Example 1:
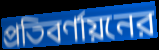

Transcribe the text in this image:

প্রতিবর্ণায়নের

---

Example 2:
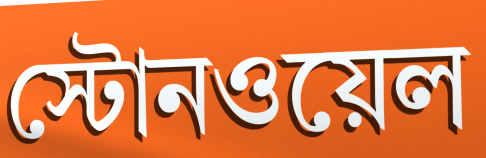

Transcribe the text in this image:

স্টোনওয়েল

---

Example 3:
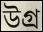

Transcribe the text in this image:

উগ্র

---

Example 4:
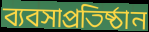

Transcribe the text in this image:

ব্যবসাপ্রতিষ্ঠান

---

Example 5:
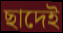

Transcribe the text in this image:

ছাদেই